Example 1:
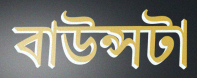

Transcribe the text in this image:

বাউন্সটা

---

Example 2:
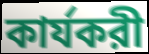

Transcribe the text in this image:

কার্যকরী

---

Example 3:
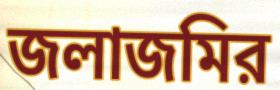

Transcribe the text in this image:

জলাজমির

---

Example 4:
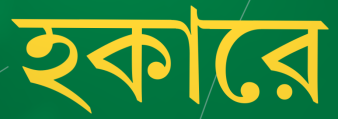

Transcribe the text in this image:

হকারে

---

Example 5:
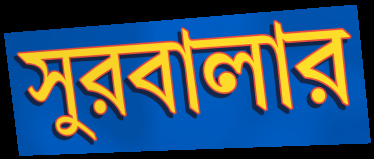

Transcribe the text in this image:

সুরবালার